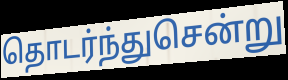
தொடர்ந்துசென்று